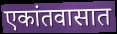
एकांतवासात